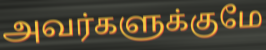
அவர்களுக்குமே